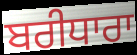
ਬਰੀਧਾਰਾ